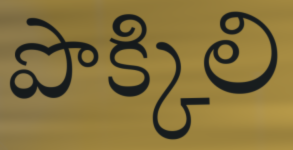
పొక్కిలి